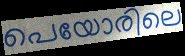
പെയോരിലെ